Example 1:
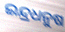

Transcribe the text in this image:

ଇନ୍ଦ୍ରଧନୁଷ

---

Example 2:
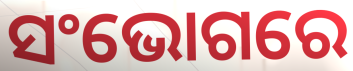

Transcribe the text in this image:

ସଂଭୋଗରେ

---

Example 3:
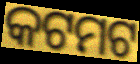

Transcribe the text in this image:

କଟମଟ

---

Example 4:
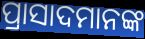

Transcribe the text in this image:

ପ୍ରାସାଦମାନଙ୍କ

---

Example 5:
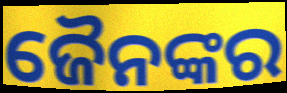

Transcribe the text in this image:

ଜୈନଙ୍କର